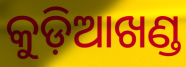
କୁଡ଼ିଆଖଣ୍ଡ